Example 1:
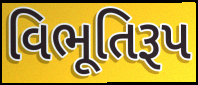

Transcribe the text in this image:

વિભૂતિરૂપ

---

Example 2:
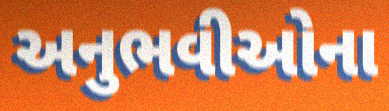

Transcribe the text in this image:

અનુભવીઓના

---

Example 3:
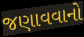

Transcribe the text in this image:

જણાવવાનો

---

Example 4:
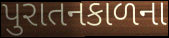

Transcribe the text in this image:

પુરાતનકાળના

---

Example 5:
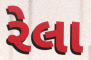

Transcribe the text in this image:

રેલા